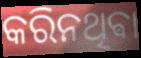
କରିନଥିଵା